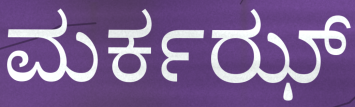
ಮರ್ಕಝ್